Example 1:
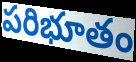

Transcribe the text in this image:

పరిభూతం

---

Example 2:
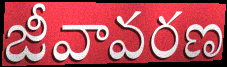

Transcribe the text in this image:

జీవావరణ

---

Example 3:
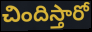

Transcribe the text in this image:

చిందిస్తారో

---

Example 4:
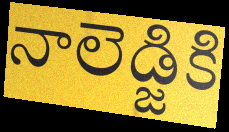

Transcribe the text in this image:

నాలెడ్జికి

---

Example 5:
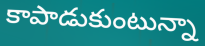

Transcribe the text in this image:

కాపాడుకుంటున్నా